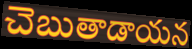
చెబుతాడాయన